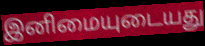
இனிமையுடையது